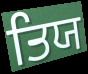
ਤਿਯ